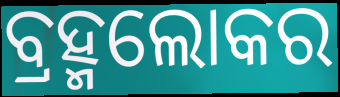
ବ୍ରହ୍ମଲୋକର